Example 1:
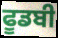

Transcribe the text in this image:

ਫੂਡਬੀ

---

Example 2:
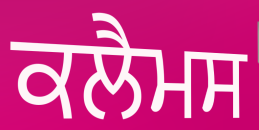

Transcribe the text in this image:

ਕਲੈਮਸ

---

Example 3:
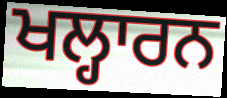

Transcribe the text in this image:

ਖਲ੍ਹਾਰਨ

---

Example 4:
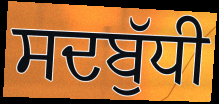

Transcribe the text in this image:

ਸਦਬੁੱਧੀ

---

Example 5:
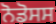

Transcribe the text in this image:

ਨੋਡੋਸਸ